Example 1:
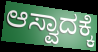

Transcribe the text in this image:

ಆಸ್ವಾದಕ್ಕೆ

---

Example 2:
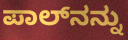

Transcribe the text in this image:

ಪಾಲ್‍ನನ್ನು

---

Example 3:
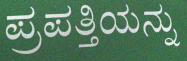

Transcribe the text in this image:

ಪ್ರಪತ್ತಿಯನ್ನು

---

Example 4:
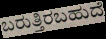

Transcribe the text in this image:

ಬರುತ್ತಿರಬಹುದೆ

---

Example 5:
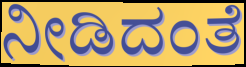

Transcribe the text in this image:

ನೀಡಿದಂತೆ